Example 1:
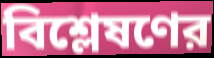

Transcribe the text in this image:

বিশ্লেষণের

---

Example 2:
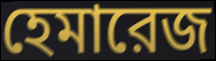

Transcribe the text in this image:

হেমারেজ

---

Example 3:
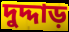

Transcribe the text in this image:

দুদ্দাড়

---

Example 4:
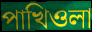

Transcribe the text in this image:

পাখিওলা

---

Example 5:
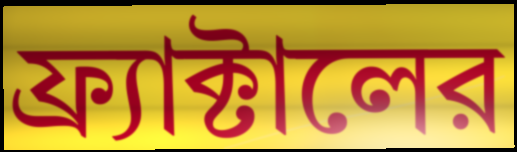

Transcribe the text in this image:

ফ্র্যাক্টালের